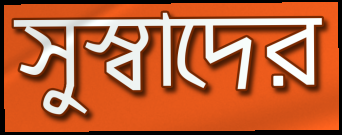
সুস্বাদের